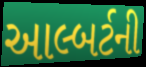
આલ્બર્ટની